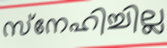
സ്‌നേഹിച്ചില്ല